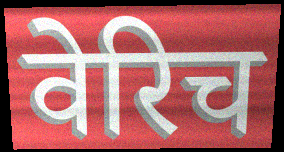
वेरिच